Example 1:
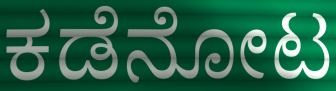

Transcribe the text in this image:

ಕಡೆನೋಟ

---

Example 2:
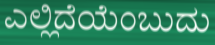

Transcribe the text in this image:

ಎಲ್ಲಿದೆಯೆಂಬುದು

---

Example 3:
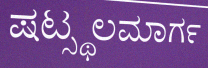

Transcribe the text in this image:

ಷಟ್ಸ್ಥಲಮಾರ್ಗ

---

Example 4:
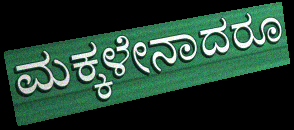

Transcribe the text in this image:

ಮಕ್ಕಳೇನಾದರೂ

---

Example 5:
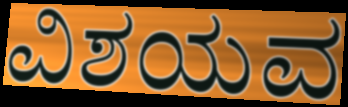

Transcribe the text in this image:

ವಿಶಯವ